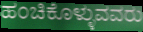
ಹಂಚಿಕೊಳ್ಳುವವರು